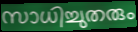
സാധിച്ചുതരും